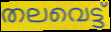
തലവെട്ട്